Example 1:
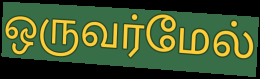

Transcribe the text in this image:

ஒருவர்மேல்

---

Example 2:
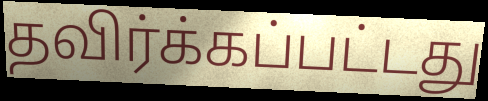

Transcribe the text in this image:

தவிர்க்கப்பட்டது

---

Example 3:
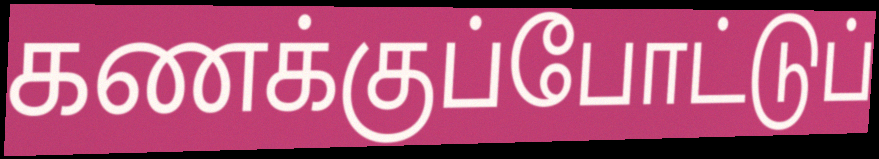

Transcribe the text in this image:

கணக்குப்போட்டுப்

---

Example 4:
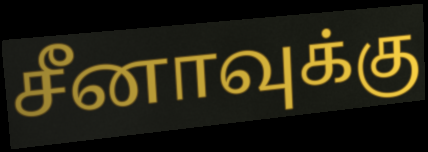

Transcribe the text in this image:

சீனாவுக்கு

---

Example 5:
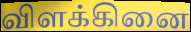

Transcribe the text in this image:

விளக்கினை